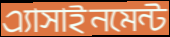
এ্যাসাইনমেন্ট